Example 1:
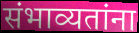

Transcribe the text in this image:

संभाव्यतांना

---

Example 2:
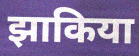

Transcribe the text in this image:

झाकिया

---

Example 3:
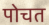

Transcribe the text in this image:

पोचत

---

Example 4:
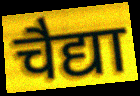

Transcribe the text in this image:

चैद्या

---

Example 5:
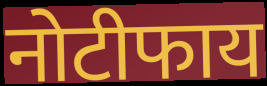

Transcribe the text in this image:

नोटीफाय